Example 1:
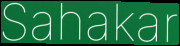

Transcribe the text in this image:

Sahakar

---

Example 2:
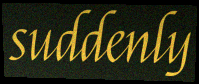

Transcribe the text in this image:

suddenly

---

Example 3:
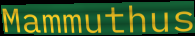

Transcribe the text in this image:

Mammuthus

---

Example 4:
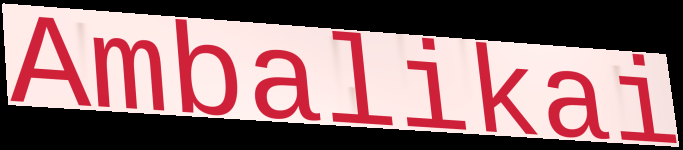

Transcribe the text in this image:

Ambalikai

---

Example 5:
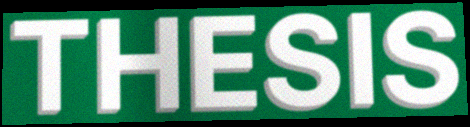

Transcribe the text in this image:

THESIS